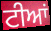
ਟੀਆਂ